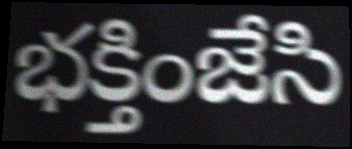
భక్తింజేసి